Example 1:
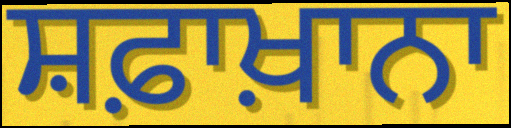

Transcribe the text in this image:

ਸ਼ਫ਼ਾਖ਼ਾਨਾ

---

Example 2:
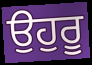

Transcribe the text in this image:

ਉਹੁਰੂ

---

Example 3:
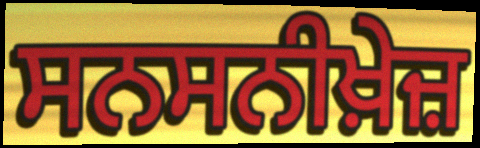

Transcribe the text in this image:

ਸਨਸਨੀਖ਼ੇਜ਼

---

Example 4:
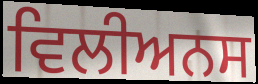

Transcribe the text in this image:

ਵਿਲੀਅਨਸ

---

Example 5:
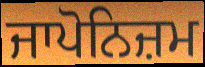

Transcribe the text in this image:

ਜਾਪੋਨਿਜ਼ਮ